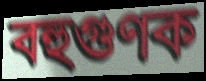
বহুগুণক